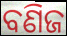
ବଣିଜ